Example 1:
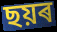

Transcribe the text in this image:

ছয়ৰ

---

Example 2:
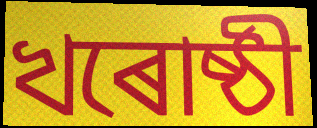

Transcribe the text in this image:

খৰোষ্ঠী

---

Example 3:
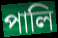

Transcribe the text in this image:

পালি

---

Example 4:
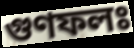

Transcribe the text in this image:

গুণফলঃ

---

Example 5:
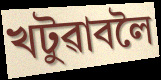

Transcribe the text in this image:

খটুৱাবলৈ